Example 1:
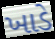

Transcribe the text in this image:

ખાડે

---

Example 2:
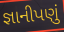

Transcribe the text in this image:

જ્ઞાનીપણું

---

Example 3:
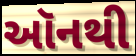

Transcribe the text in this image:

ઑનથી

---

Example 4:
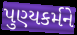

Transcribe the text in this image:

પુણ્યકર્મને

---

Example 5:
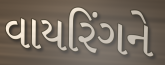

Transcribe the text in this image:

વાયરિંગને